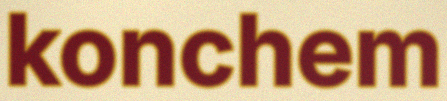
konchem